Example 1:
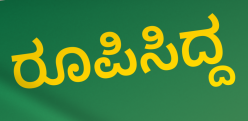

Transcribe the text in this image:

ರೂಪಿಸಿದ್ದ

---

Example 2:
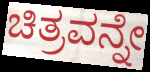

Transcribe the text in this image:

ಚಿತ್ರವನ್ನೇ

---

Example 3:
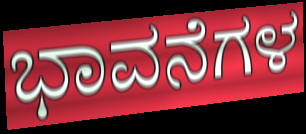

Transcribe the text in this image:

ಭಾವನೆಗಳ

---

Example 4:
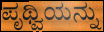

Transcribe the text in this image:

ಪೃಥ್ವಿಯನ್ನು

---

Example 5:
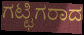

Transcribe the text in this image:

ಗಟ್ಟಿಗರಾದ